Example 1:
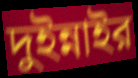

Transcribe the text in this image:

দুইন্নাইর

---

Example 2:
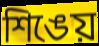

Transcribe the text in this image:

শিঙেয়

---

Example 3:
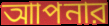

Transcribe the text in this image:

আাপনার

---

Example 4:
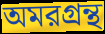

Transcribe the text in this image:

অমরগ্রন্থ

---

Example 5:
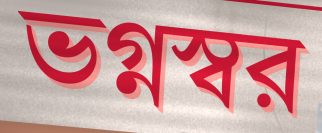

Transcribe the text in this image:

ভগ্নস্বর